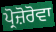
ਪ੍ਰੋਜ਼ੋਰੋਵਾ